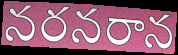
నరనరాన